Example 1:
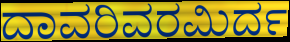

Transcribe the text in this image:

ದಾವರಿವರಮಿರ್ದ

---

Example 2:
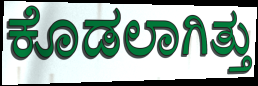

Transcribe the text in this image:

ಕೊಡಲಾಗಿತ್ತು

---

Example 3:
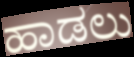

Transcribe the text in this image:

ಹಾಡಲು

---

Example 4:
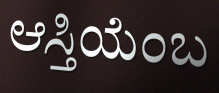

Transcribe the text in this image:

ಆಸ್ತಿಯೆಂಬ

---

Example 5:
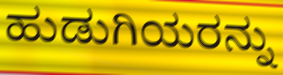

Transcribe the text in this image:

ಹುಡುಗಿಯರನ್ನು